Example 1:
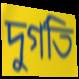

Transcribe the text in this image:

দুর্গতি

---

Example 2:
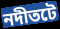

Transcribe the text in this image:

নদীতটে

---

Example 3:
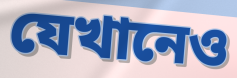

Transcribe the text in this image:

যেখানেও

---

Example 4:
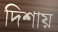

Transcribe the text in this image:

দিশায়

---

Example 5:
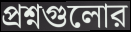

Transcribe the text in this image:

প্রশ্নগুলোর